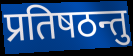
प्रतिषठन्तु